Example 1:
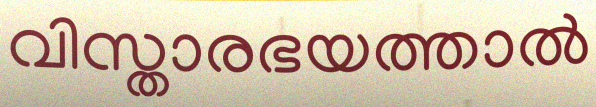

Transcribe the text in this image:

വിസ്താരഭയത്താൽ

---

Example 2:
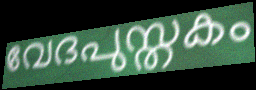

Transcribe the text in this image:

വേദപുസ്തകം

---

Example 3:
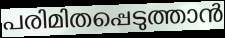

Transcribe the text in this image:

പരിമിതപ്പെടുത്താൻ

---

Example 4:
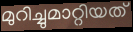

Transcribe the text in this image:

മുറിച്ചുമാറ്റിയത്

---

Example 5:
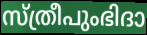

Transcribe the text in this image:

സ്ത്രീപുംഭിദാ